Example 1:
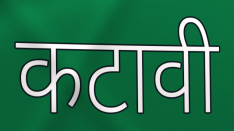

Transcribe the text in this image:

कटावी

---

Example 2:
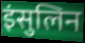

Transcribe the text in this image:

इंसुलिन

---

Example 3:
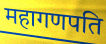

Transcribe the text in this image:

महागणपति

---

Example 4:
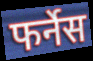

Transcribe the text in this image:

फर्नेस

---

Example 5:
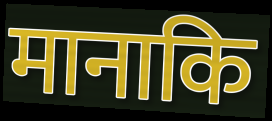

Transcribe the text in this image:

मानाकि